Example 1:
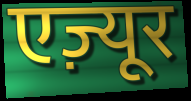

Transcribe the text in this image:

एज़्यूर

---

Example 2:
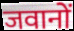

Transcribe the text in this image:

जवानों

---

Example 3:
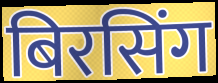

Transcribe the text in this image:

बिरसिंग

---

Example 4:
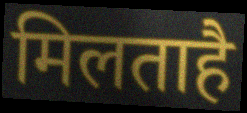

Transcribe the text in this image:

मिलताहै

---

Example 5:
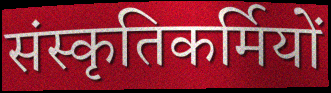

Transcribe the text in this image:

संस्कृतिकर्मियों